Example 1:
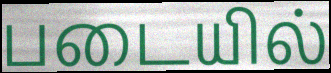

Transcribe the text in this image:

படையில்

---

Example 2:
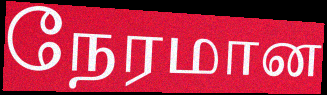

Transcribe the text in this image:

நேரமான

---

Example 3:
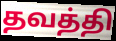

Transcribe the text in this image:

தவத்தி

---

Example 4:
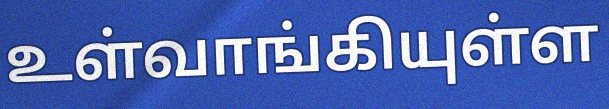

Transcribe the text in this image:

உள்வாங்கியுள்ள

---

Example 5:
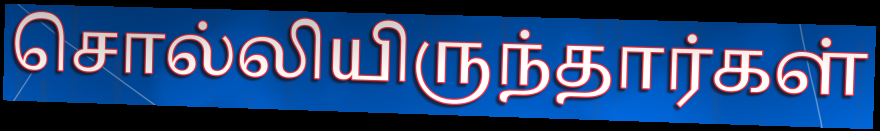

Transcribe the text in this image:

சொல்லியிருந்தார்கள்